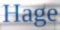
Hage